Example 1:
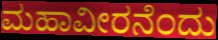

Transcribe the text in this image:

ಮಹಾವೀರನೆಂದು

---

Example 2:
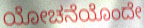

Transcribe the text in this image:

ಯೋಚನೆಯೊಂದೇ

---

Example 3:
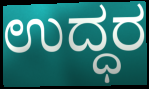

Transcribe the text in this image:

ಉದ್ಧರ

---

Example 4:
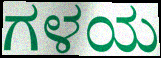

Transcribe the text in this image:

ಗಳಯ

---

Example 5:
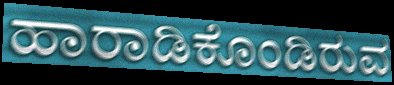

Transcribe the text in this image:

ಹಾರಾಡಿಕೊಂಡಿರುವ